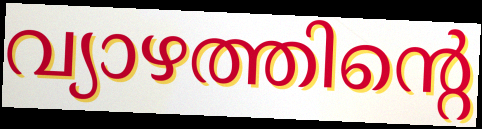
വ്യാഴത്തിന്റെ